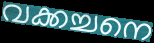
വക്കച്ചനെ